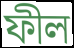
ফীল